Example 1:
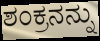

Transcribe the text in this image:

ಶಂಕ್ರನನ್ನು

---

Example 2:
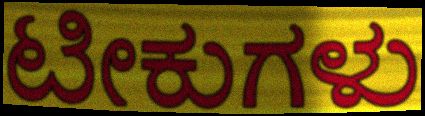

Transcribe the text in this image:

ಟೀಕುಗಳು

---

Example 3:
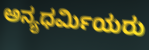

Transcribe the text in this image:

ಅನ್ಯಧರ್ಮಿಯರು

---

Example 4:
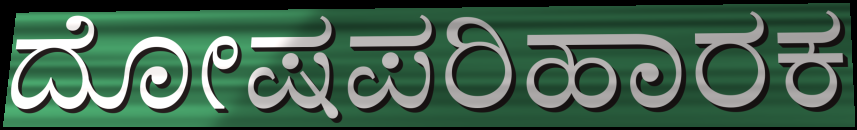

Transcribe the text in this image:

ದೋಷಪರಿಹಾರಕ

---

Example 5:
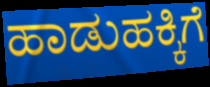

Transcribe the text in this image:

ಹಾಡುಹಕ್ಕಿಗೆ